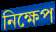
নিক্ষেপ